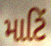
માટિં